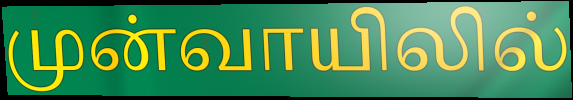
முன்வாயிலில்